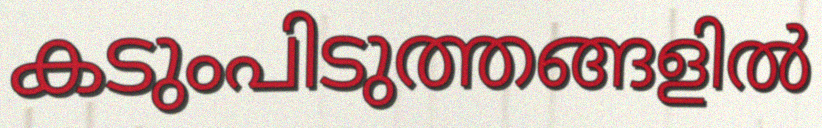
കടുംപിടുത്തങ്ങളിൽ